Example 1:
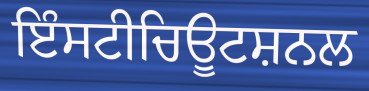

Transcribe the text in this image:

ਇੰਸਟੀਚਿਊਟਸ਼ਨਲ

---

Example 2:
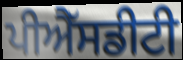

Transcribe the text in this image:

ਪੀਐੱਸਡੀਟੀ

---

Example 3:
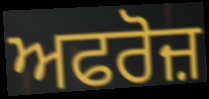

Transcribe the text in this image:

ਅਫਰੋਜ਼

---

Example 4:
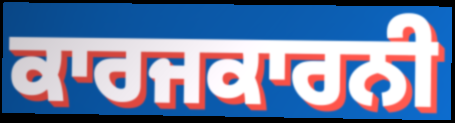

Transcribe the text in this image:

ਕਾਰਜਕਾਰਨੀ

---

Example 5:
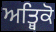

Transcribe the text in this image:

ਅਤ੍ਥਿਕੋ